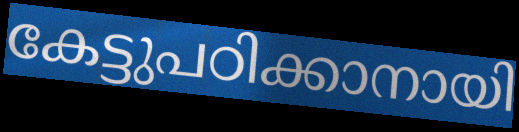
കേട്ടുപഠിക്കാനായി